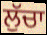
ਲੁੱਚਾ